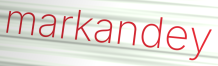
markandey